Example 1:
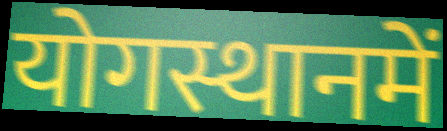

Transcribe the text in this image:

योगस्थानमें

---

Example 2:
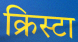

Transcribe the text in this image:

क्रिस्टा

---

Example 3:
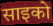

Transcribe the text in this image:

साइको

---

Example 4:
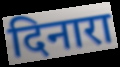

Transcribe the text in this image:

दिनारा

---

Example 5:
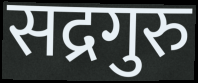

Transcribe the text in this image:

सद्रगुरु